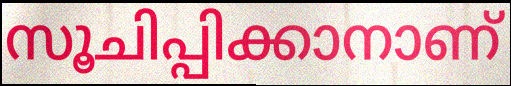
സൂചിപ്പിക്കാനാണ്